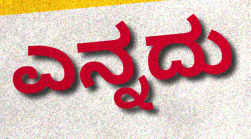
ಎನ್ನದು